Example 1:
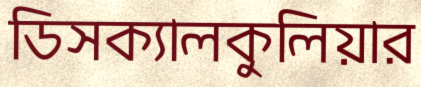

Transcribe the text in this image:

ডিসক্যালকুলিয়ার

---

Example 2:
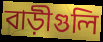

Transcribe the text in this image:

বাড়ীগুলি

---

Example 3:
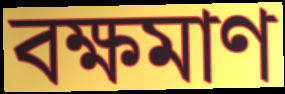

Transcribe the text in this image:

বক্ষমাণ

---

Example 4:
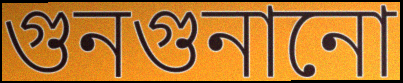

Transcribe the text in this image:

গুনগুনানো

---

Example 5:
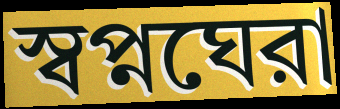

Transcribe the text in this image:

স্বপ্নঘেরা